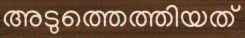
അടുത്തെത്തിയത്